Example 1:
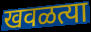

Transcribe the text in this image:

खवळत्या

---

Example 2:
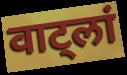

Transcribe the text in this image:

वाट्लां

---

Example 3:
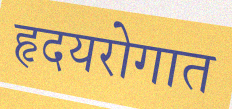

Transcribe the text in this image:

हृदयरोगात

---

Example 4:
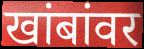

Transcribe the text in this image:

खांबांवर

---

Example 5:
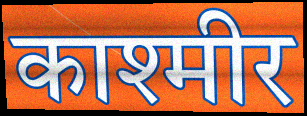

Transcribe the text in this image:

काश्मीर